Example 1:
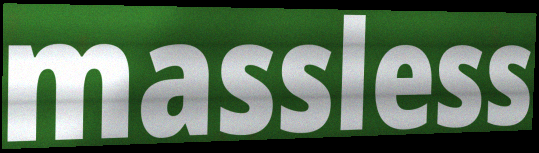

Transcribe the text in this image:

massless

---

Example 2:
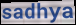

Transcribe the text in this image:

sadhya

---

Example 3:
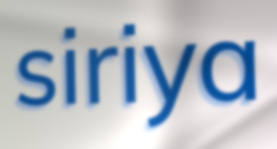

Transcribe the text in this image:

siriya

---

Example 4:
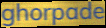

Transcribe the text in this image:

ghorpade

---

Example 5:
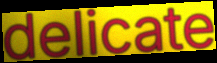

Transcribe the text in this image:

delicate